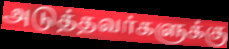
அடுத்தவர்களுக்கு